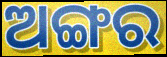
ଅଙ୍ଗର